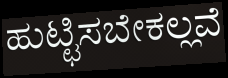
ಹುಟ್ಟಿಸಬೇಕಲ್ಲವೆ